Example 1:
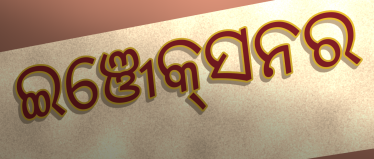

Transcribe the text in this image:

ଇଞ୍ଜେକ୍‌ସନର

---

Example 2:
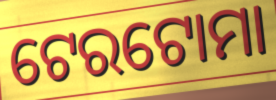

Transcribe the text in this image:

ଟେରଟୋମା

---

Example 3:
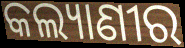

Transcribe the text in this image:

କଲ୍ୟାଣୀର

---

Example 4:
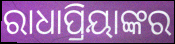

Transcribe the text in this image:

ରାଧାପ୍ରିୟାଙ୍କର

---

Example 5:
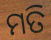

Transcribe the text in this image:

ମତି